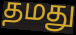
தமது